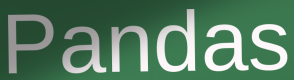
Pandas